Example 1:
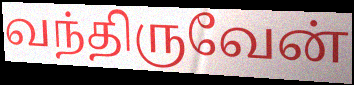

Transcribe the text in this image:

வந்திருவேன்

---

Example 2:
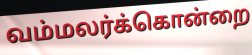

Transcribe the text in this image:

வம்மலர்க்கொன்றை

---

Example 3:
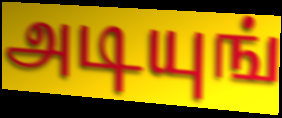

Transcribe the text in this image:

அடியுங்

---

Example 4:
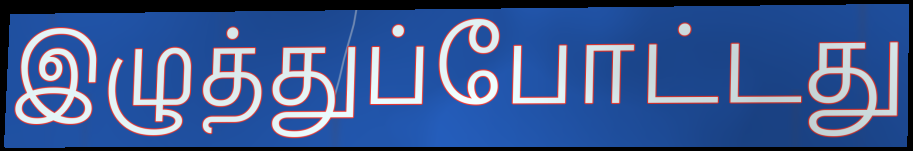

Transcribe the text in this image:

இழுத்துப்போட்டது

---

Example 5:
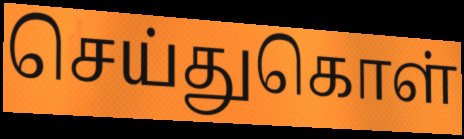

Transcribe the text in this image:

செய்துகொள்